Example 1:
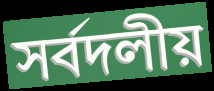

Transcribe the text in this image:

সর্বদলীয়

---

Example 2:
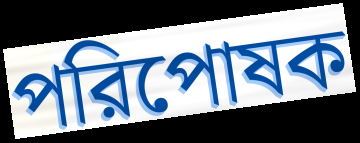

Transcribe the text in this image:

পরিপোষক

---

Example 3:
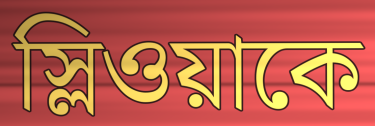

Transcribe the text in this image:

স্লিওয়াকে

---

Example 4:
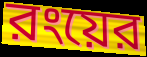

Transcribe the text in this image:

রংয়ের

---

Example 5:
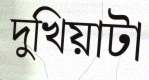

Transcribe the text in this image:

দুখিয়াটা